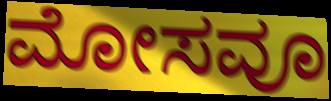
ಮೋಸವೂ